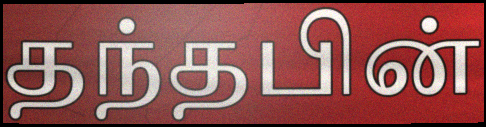
தந்தபின்